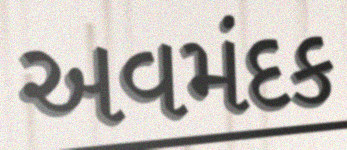
અવમંદક